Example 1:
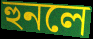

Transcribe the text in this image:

হুনলে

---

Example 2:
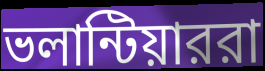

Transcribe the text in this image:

ভলান্টিয়াররা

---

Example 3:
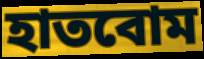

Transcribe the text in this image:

হাতবোম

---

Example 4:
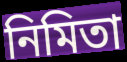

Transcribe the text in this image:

নিমিতা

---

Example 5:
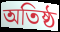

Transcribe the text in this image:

অতিষ্ঠ